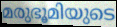
മരുഭൂമിയുടെ